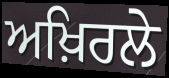
ਅਖ਼ਿਰਲੇ